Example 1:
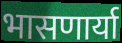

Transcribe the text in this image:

भासणार्या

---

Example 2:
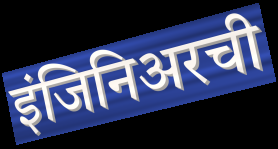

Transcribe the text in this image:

इंजिनिअरची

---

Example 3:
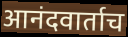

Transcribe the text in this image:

आनंदवार्ताच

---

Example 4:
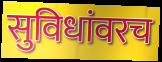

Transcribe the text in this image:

सुविधांवरच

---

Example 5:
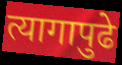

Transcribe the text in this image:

त्यागापुढे